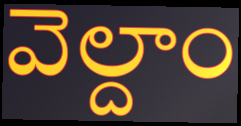
వెల్దాం